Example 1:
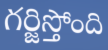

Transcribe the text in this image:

గర్జిస్తోంది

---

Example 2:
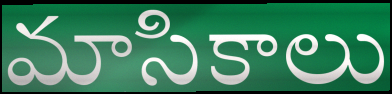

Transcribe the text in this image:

మాసికాలు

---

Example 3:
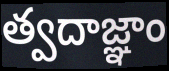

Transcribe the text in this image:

త్వదాజ్ఞాం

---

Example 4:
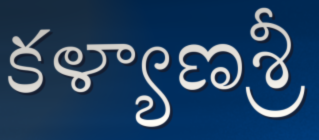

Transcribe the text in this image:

కళ్యాణశ్రీ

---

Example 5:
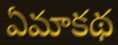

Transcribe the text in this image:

ఏమాకథ